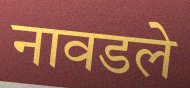
नावडले